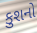
કુશનો